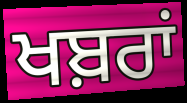
ਖਬ਼ਰਾਂ